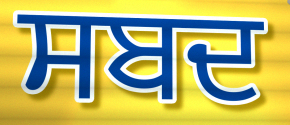
ਸਬਦ